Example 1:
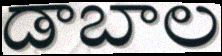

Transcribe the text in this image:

డాబాల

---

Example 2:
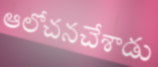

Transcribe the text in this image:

ఆలోచనచేశాడు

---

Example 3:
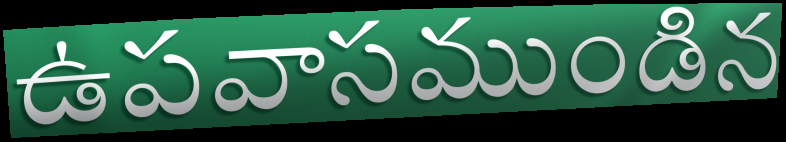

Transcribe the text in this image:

ఉపవాసముండిన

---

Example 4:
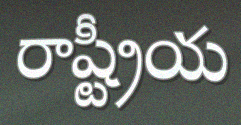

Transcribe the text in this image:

రాష్ట్రీయ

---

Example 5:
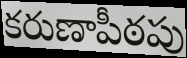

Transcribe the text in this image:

కరుణాపీఠపు